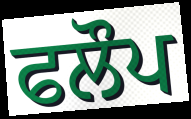
ਫਲੌਪ